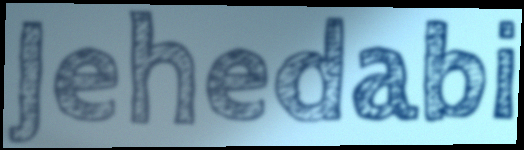
Jehedabi